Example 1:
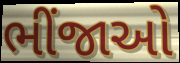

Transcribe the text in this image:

ભીંજાઓ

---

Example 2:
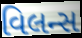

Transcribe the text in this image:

વિલન્સ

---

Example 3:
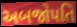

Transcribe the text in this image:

અબજોપતિ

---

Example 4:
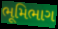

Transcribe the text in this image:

ભૂમિભાગ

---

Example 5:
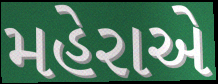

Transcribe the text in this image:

મહેરાએ